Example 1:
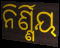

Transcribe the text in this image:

ନିର୍ଣ୍ଣିୟ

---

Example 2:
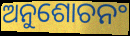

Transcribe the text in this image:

ଅନୁଶୋଚନଂ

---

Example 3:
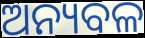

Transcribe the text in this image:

ଅନ୍ୟବଳ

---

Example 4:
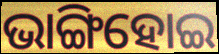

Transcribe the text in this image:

ଭାଙ୍ଗିହୋଇ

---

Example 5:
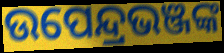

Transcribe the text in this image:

ଉପେନ୍ଦ୍ରଭଞ୍ଜଙ୍କ